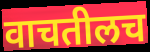
वाचतीलच